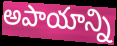
అపాయాన్ని